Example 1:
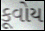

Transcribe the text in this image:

કૂવોય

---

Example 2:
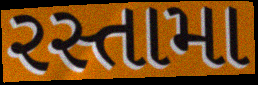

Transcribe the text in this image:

રસ્તામા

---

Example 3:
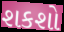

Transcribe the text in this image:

શકશો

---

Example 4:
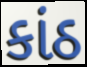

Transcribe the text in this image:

કાંઠ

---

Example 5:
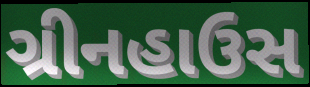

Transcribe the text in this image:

ગ્રીનહાઉસ